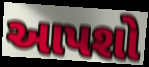
આપશો